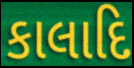
કાલાદિ